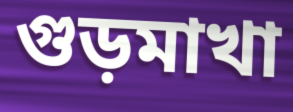
গুড়মাখা